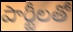
పార్టీలతో